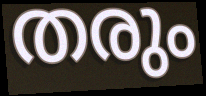
തരും